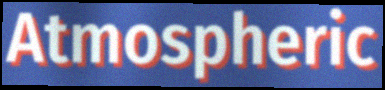
Atmospheric